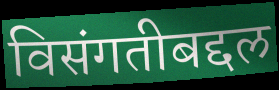
विसंगतीबद्दल